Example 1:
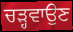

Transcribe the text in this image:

ਚੜ੍ਹਵਾਉਣ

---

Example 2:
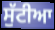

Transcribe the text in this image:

ਸੁੱਟੀਆ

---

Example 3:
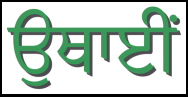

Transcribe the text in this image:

ਉਥਾਈਂ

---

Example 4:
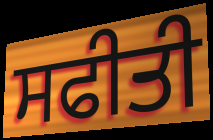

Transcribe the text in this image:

ਸਫੀਤੀ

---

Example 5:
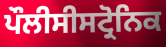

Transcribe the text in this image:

ਪੌਲੀਸੀਸਟ੍ਰੋਨਿਕ